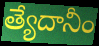
త్యేదానీం